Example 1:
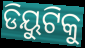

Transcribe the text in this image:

ଡିୟୁଟିକୁ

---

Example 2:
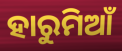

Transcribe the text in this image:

ହାରୁମିଆଁ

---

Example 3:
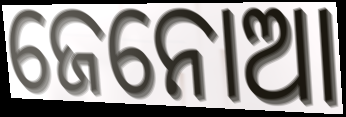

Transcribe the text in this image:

ଜେନୋଆ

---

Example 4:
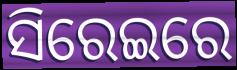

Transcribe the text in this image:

ସିରେଇରେ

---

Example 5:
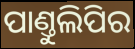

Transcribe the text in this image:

ପାଣ୍ତୁଲିପିର